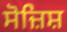
ਸੋਜ਼ਿਸ਼